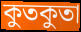
কুতকুতা